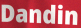
Dandin